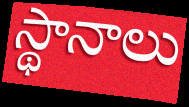
స్థానాలు